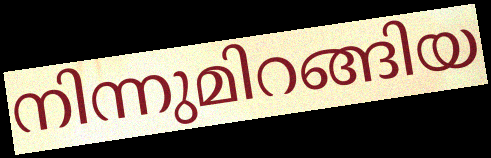
നിന്നുമിറങ്ങിയ